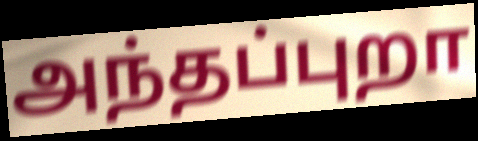
அந்தப்புறா